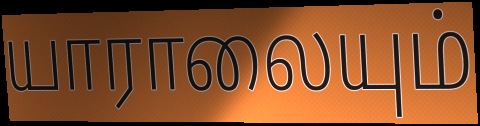
யாராலையும்